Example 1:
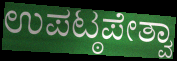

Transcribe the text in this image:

ಉಪಟ್ಠಪೇತ್ವಾ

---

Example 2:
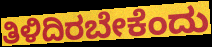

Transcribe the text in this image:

ತಿಳಿದಿರಬೇಕೆಂದು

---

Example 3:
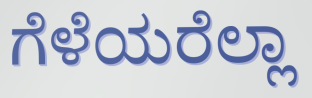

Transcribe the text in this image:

ಗೆಳೆಯರೆಲ್ಲಾ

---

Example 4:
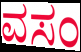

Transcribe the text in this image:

ವಸಂ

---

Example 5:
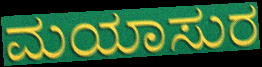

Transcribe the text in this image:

ಮಯಾಸುರ